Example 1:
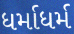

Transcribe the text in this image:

ધર્માધર્મ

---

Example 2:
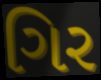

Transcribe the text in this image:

ગિર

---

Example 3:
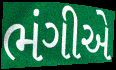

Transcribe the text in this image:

ભંગીએ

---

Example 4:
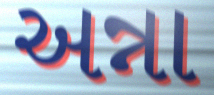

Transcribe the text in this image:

અન્ના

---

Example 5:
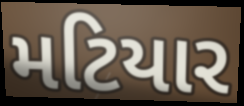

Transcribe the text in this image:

મટિયાર